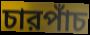
চারপাঁচ